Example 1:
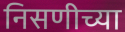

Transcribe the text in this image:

निसणीच्या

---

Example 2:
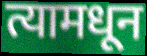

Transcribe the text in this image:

त्यामधून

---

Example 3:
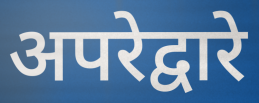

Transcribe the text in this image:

अपरेद्वारे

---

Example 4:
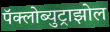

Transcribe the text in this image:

पॅक्लोब्युट्राझोल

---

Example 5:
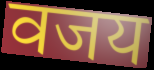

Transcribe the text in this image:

वजय